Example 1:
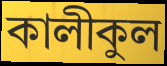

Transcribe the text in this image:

কালীকুল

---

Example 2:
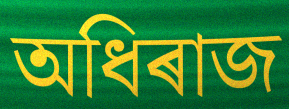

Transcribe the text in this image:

অধিৰাজ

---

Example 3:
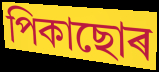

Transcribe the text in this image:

পিকাছোৰ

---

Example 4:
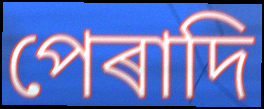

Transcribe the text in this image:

পেৰাদি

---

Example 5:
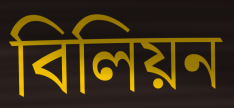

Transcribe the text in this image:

বিলিয়ন